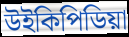
উইকিপিডিয়া